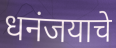
धनंजयाचे